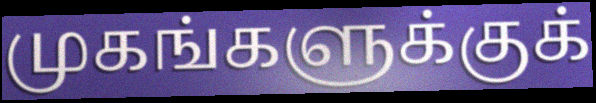
முகங்களுக்குக்